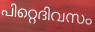
പിറ്റെദിവസം